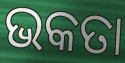
ଭକତା